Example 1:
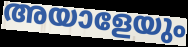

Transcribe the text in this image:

അയാളേയും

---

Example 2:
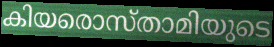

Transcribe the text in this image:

കിയരൊസ്താമിയുടെ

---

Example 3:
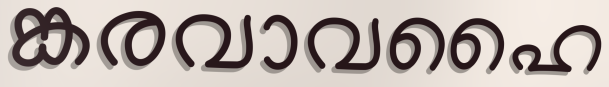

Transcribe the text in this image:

ങ്കരവാവഹൈ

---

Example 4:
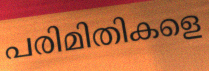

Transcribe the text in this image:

പരിമിതികളെ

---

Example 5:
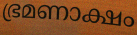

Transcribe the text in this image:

ഭ്രമണാക്ഷം